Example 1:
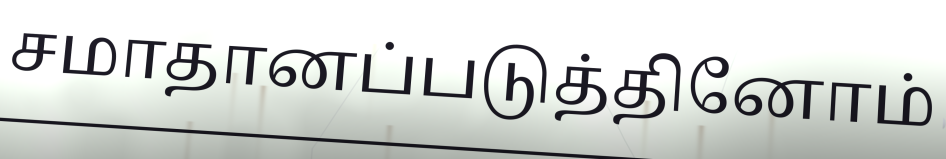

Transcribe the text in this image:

சமாதானப்படுத்தினோம்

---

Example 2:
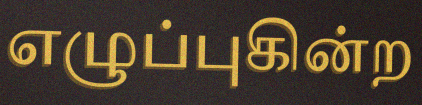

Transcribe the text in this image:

எழுப்புகின்ற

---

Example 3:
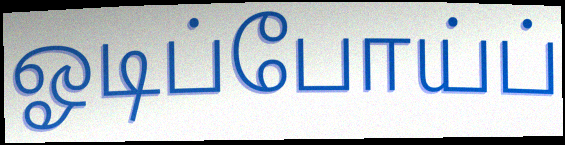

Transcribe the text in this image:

ஓடிப்போய்ப்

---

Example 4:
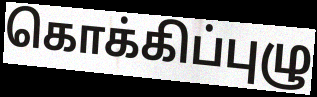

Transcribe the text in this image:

கொக்கிப்புழு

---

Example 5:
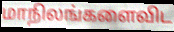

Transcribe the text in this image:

மாநிலங்களைவிட